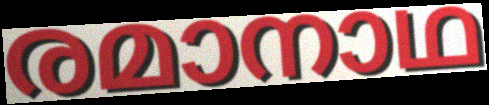
രമാനാഥ